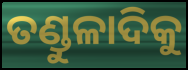
ତଣ୍ଡୁଳାଦିକୁ